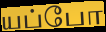
யப்போ